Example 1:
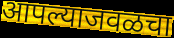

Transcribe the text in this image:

आपल्याजवळचा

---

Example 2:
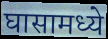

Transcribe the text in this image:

घासामध्ये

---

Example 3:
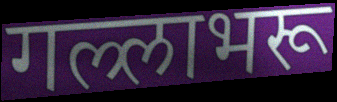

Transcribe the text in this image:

गल्लाभरू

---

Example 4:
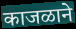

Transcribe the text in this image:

काजळाने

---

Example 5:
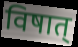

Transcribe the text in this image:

विषात्